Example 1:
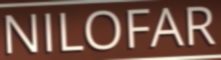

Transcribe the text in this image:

NILOFAR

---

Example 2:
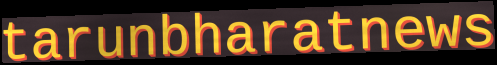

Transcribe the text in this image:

tarunbharatnews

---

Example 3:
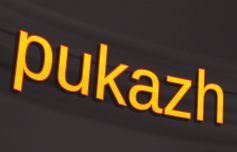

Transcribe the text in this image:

pukazh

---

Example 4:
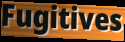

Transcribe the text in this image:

Fugitives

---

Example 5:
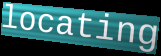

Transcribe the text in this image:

locating